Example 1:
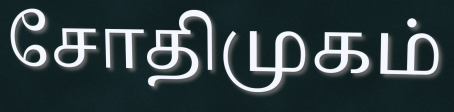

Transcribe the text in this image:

சோதிமுகம்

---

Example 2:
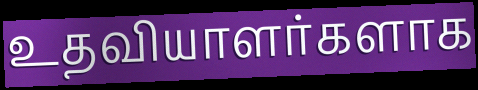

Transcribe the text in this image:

உதவியாளர்களாக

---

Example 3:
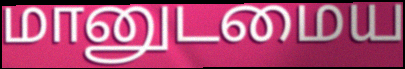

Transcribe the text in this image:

மானுடமைய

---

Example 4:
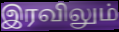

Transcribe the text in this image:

இரவிலும்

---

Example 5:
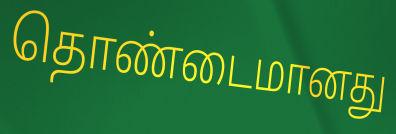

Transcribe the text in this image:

தொண்டைமானது